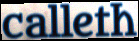
calleth